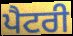
ਪੈਟਰੀ